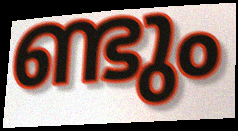
ണ്ടും